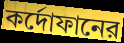
কর্দোফানের